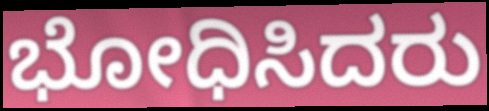
ಭೋಧಿಸಿದರು